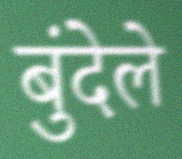
बुंदेले